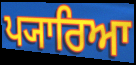
ਪ੍ਯਾਰਿਆ